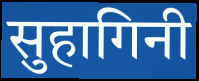
सुहागिनी